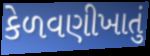
કેળવણીખાતું